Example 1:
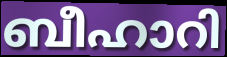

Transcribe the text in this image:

ബീഹാറി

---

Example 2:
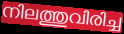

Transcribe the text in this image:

നിലത്തുവിരിച്ച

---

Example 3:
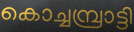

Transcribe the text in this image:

കൊച്ചമ്പ്രാട്ടി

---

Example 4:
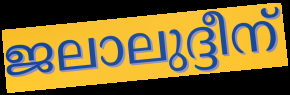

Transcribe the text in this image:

ജലാലുദ്ദീന്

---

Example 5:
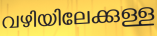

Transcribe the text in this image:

വഴിയിലേക്കുള്ള